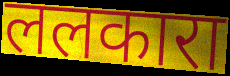
ललकारा